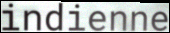
indienne